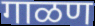
गाळण